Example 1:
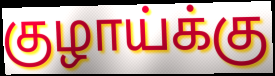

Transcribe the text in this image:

குழாய்க்கு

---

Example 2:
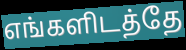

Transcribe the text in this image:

எங்களிடத்தே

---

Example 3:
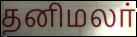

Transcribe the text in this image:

தனிமலர்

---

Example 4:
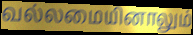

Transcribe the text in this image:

வல்லமையினாலும்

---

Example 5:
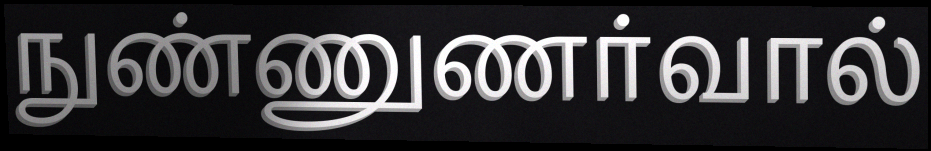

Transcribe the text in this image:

நுண்ணுணர்வால்